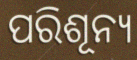
ପରିଶୂନ୍ୟ